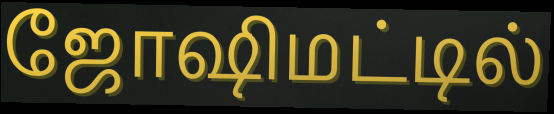
ஜோஷிமட்டில்